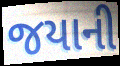
જયાની